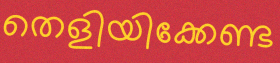
തെളിയിക്കേണ്ട